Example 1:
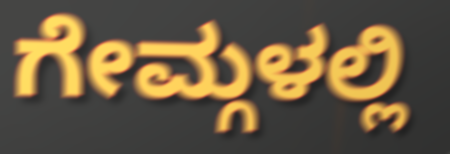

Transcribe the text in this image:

ಗೇಮ್ಗಳಲ್ಲಿ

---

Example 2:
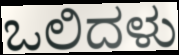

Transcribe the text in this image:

ಒಲಿದಳು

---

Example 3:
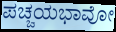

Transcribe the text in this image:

ಪಚ್ಚಯಭಾವೋ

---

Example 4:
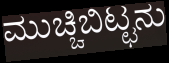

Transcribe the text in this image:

ಮುಚ್ಚಿಬಿಟ್ಟನು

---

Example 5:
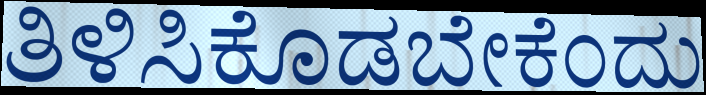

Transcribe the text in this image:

ತಿಳಿಸಿಕೊಡಬೇಕೆಂದು